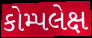
કોમ્પલેક્ષ